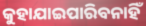
କୁହାଯାଇପାରିବନାହିଁ